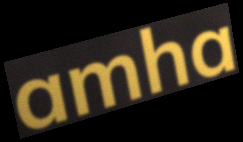
amha